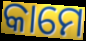
କାମେ